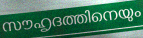
സൗഹൃദത്തിനെയും